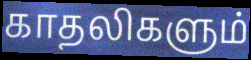
காதலிகளும்